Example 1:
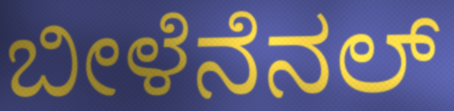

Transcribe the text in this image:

ಬೀಳೆನೆನಲ್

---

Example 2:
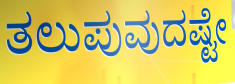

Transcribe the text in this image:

ತಲುಪುವುದಷ್ಟೇ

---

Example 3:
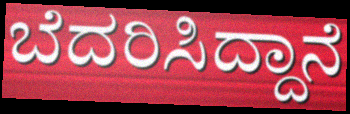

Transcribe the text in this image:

ಬೆದರಿಸಿದ್ದಾನೆ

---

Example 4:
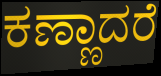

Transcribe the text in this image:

ಕಣ್ಣಾದರೆ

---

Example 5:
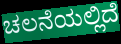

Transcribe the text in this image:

ಚಲನೆಯಲ್ಲಿದೆ